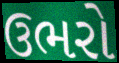
ઉભરો